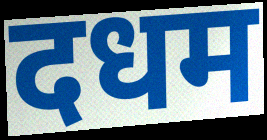
दधम